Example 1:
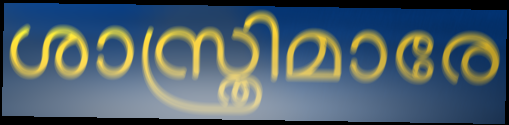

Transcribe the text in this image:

ശാസ്ത്രിമാരേ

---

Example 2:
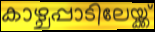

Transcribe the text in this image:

കാഴ്ചപ്പാടിലേയ്ക്ക്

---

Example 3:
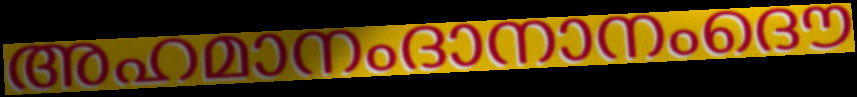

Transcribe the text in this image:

അഹമാനംദാനാനംദൌ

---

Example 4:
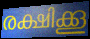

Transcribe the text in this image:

രക്ഷിക്കൂ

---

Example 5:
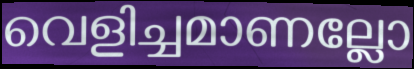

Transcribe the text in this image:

വെളിച്ചമാണല്ലോ